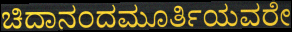
ಚಿದಾನಂದಮೂರ್ತಿಯವರೇ